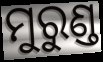
ମୁରୁଣ୍ଡ